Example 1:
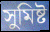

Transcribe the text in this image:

সুমিষ্ট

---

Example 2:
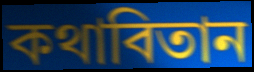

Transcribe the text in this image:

কথাবিতান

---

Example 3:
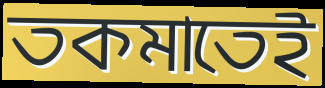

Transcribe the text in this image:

তকমাতেই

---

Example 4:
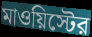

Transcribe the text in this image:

মাওয়িস্টের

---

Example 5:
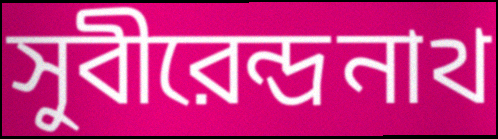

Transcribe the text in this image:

সুবীরেন্দ্রনাথ